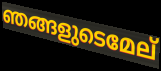
ഞങ്ങളുടെമേല്